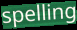
spelling